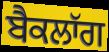
ਬੈਕਲਾੱਗ